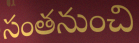
సంతనుంచి